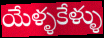
యేళ్ళకేళ్ళు